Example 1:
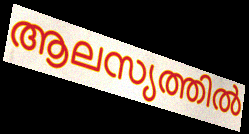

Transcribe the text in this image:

ആലസ്യത്തിൽ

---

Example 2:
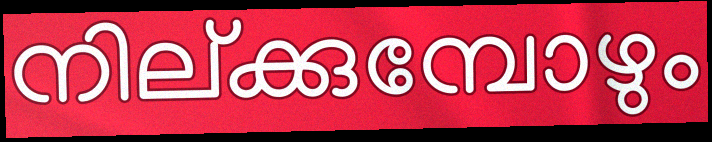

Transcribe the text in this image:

നില്ക്കുമ്പോഴും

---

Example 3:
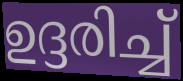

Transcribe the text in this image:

ഉദ്ദരിച്ച്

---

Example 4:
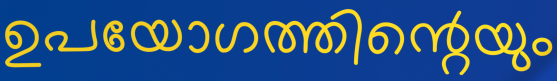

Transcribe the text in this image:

ഉപയോഗത്തിന്റെയും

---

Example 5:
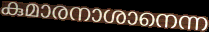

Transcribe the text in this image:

കുമാരനാശാനെന്ന